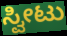
ಸ್ವೀಟು